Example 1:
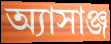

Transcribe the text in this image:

অ্যাসাঞ্জ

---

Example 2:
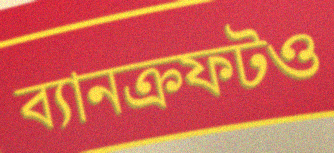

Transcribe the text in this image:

ব্যানক্রফটও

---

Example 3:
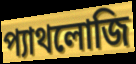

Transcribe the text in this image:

প্যাথলোজি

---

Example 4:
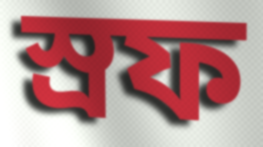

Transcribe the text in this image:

স্রফ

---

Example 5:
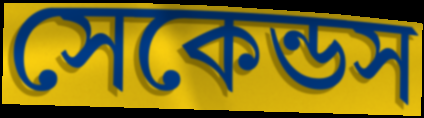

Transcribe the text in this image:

সেকেন্ডস